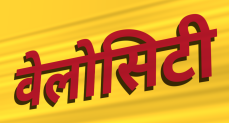
वेलोसिटी